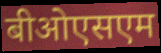
बीओएसएम